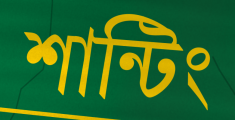
শান্টিং